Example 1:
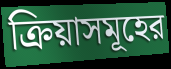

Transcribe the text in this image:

ক্রিয়াসমূহের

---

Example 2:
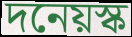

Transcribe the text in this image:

দনেয়স্ক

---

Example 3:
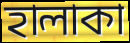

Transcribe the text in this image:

হালাকা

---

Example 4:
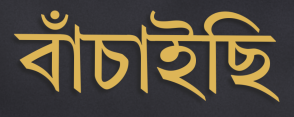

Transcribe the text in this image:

বাঁচাইছি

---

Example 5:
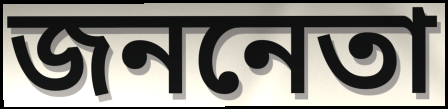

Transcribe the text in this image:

জননেতা